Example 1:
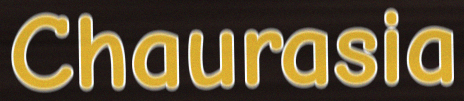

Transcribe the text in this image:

Chaurasia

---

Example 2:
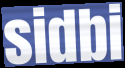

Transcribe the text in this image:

sidbi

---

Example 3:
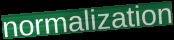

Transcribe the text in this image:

normalization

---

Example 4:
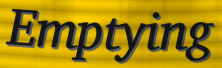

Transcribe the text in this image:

Emptying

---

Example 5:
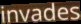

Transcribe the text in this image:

invades